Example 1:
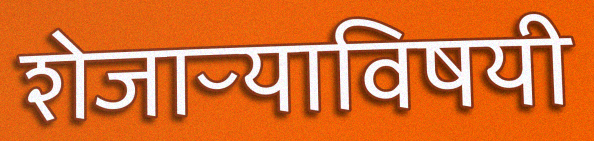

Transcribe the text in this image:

शेजाऱ्याविषयी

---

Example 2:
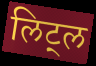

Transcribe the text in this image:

लिट्‌ल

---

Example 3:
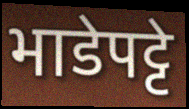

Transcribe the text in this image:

भाडेपट्टे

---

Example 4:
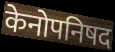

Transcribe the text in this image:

केनोपनिषद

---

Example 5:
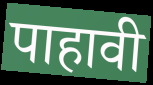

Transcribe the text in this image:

पाहावी